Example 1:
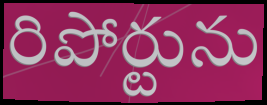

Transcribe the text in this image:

రిపోర్టును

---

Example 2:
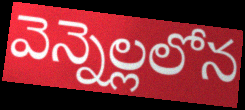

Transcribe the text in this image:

వెన్నెల్లలోన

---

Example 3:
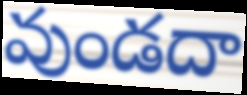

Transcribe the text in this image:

వుండదా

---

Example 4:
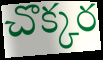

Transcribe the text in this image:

చొక్కర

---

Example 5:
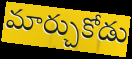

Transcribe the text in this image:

మార్చుకోడు